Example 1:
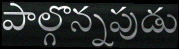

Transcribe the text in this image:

పాల్గొన్నపుడు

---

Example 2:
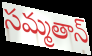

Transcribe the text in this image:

సమ్మతాన్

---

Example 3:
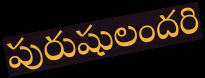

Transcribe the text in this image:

పురుషులందరి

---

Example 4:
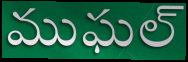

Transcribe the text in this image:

ముఘల్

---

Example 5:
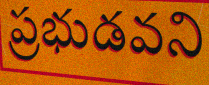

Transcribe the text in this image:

ప్రభుడవని